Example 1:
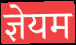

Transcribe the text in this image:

ज्ञेयम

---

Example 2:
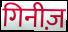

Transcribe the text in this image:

गिनीज़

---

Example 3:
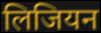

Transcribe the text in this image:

लिजियन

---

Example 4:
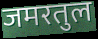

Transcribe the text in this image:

जमरतुल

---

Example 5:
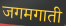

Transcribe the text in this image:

जगमगाती